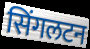
सिंगलटन